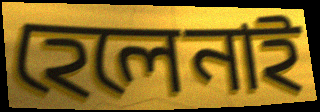
হেলেনাই